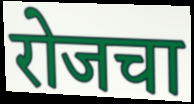
रोजचा